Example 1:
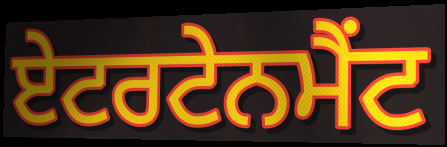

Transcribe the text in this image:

ਏਟਰਟੇਨਮੈਂਟ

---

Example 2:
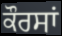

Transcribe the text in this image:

ਕੌਰਸਾਂ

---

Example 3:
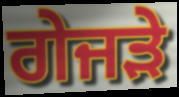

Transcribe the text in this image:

ਗੇਜੜੇ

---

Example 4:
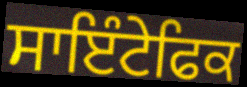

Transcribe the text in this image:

ਸਾਇੰਟੇਫਿਕ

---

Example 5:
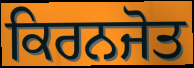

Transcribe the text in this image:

ਕਿਰਨਜੋਤ